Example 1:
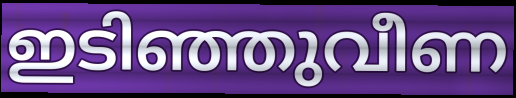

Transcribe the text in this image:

ഇടിഞ്ഞുവീണ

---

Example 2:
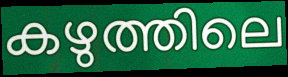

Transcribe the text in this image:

കഴുത്തിലെ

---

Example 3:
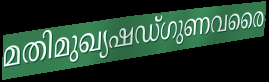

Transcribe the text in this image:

മതിമുഖ്യഷഡ്ഗുണവരൈ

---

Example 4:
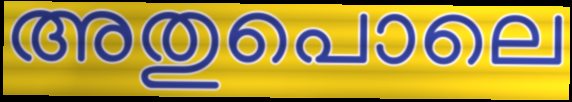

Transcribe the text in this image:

അതുപൊലെ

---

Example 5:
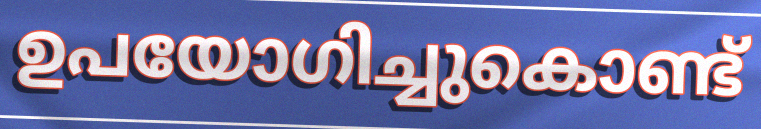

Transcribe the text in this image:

ഉപയോഗിച്ചുകൊണ്ട്